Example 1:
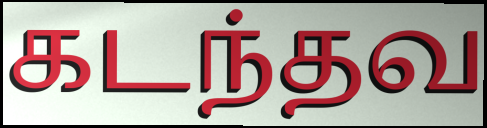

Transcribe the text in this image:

கடந்தவ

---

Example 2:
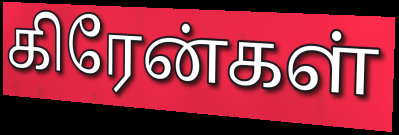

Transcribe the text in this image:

கிரேன்கள்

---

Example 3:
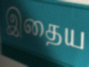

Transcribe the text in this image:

இதைய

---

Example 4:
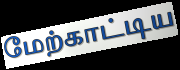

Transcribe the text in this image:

மேற்காட்டிய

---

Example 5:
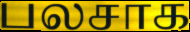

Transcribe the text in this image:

பலசாக